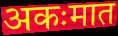
अकःमात